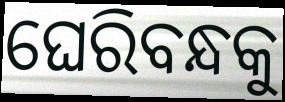
ଘେରିବନ୍ଧକୁ